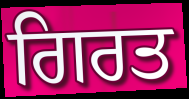
ਗਿਰਤ